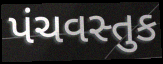
પંચવસ્તુક